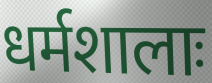
धर्मशालाः